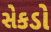
સેકડો